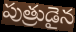
పుత్రుడైన